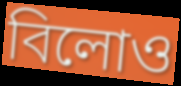
বিলোও